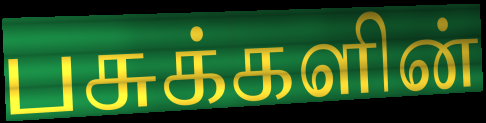
பசுக்களின்